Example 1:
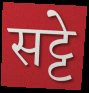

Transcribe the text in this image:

सट्टे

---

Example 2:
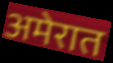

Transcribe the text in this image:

अमेरात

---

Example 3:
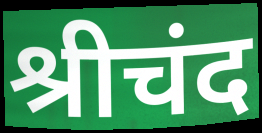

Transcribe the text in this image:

श्रीचंद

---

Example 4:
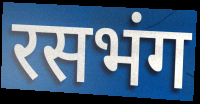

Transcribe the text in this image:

रसभंग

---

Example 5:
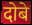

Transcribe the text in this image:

दोबे